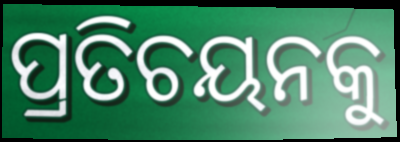
ପ୍ରତିଚୟନକୁ